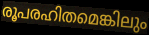
രൂപരഹിതമെങ്കിലും